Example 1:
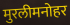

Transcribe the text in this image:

मुरलीमनोहर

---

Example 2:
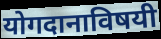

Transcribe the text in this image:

योगदानाविषयी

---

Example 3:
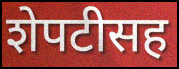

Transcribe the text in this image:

शेपटीसह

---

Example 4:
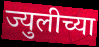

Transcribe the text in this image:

ज्युलीच्या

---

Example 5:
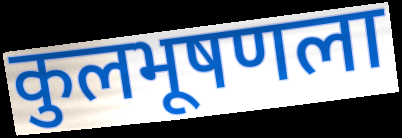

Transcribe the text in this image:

कुलभूषणला